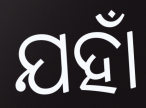
ଯହାଁ